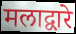
मलाद्वारे